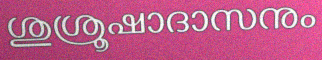
ശുശ്രൂഷാദാസനും